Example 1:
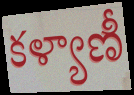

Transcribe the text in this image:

కళ్యాణీ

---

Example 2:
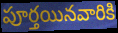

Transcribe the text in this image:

పూర్తయినవారికి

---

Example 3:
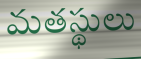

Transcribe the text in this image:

మతస్థులు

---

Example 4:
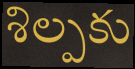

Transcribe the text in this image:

శిల్పకు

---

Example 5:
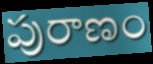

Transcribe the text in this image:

పురాణం